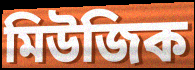
মিউজিক